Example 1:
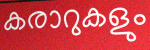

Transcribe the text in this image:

കരാറുകളും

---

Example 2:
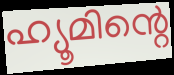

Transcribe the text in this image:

ഹ്യൂമിന്റെ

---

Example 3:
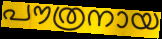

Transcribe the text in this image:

പൗത്രനായ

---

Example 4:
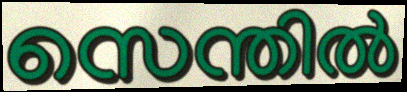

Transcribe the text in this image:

സെന്തിൽ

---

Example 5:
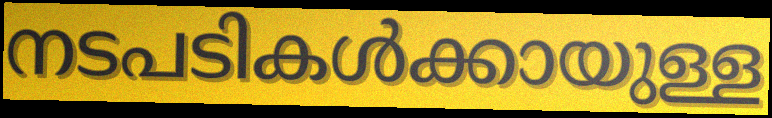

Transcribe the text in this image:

നടപടികൾക്കായുള്ള